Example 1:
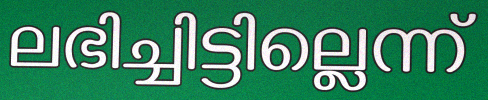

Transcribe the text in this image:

ലഭിച്ചിട്ടില്ലെന്ന്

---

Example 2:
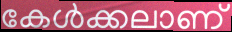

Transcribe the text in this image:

കേൾക്കലാണ്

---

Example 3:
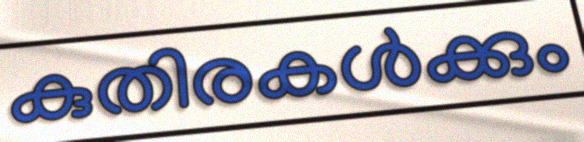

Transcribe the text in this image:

കുതിരകൾക്കും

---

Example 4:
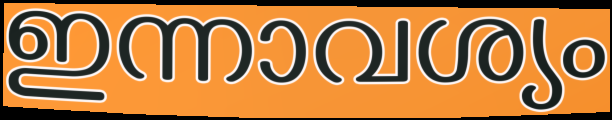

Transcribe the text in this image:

ഇന്നാവശ്യം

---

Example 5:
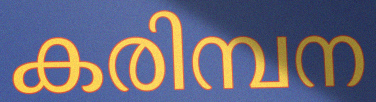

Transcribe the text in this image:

കരിമ്പന